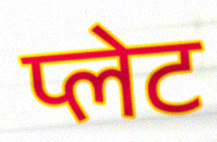
प्लेट